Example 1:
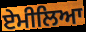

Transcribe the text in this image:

ਏਮੀਲਿਆ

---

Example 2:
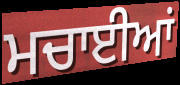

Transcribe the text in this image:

ਮਚਾਈਆਂ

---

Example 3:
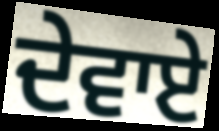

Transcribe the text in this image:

ਦੇਵਾਏ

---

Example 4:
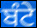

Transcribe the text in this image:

ਬੰਟੇ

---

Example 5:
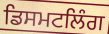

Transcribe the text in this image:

ਡਿਸਮਟਲਿੰਗ